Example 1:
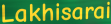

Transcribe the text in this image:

Lakhisarai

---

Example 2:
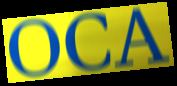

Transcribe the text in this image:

OCA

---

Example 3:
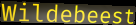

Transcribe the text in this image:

Wildebeest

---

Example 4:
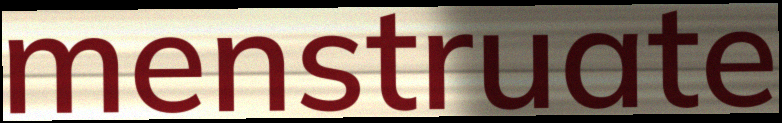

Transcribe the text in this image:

menstruate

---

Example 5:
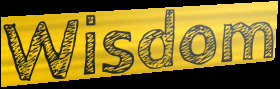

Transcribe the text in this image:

Wisdom